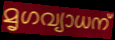
മൃഗവ്യാധന്